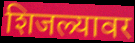
शिजल्यावर